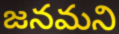
జనమని